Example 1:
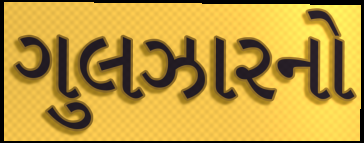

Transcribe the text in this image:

ગુલઝારનો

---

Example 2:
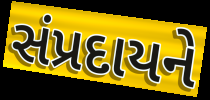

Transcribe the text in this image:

સંપ્રદાયને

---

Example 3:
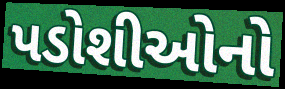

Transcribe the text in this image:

પડોશીઓનો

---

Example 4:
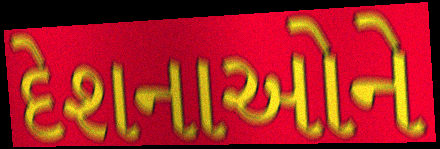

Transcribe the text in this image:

દેશનાઓને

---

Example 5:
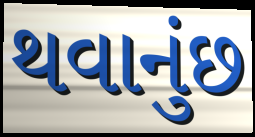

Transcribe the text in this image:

થવાનુંછ